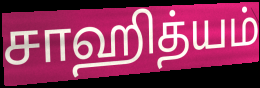
சாஹித்யம்